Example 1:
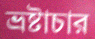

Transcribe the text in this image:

ভ্রষ্টাচার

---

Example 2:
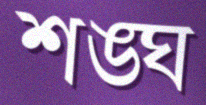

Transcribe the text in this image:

শঙ্ঘ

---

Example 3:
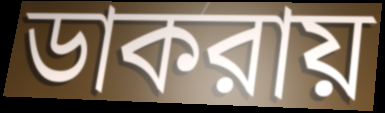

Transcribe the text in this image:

ডাকরায়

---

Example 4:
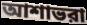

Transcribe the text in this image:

আশাভরা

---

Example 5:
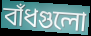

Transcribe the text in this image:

বাঁধগুলো